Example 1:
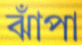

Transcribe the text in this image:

ঝাঁপা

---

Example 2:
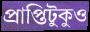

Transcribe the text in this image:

প্রাপ্তিটুকুও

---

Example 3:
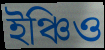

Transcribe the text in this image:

ইঞ্চিও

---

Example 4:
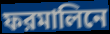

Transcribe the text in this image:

ফরমালিনে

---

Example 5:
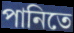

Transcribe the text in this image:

পানিতে